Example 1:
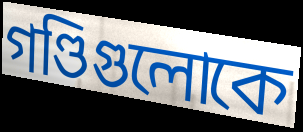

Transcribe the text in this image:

গণ্ডিগুলোকে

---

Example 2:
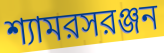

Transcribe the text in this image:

শ্যামরসরঞ্জন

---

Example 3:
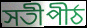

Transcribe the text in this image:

সতীপীঠ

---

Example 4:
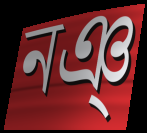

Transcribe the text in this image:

নঞ্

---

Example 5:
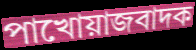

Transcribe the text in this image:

পাখোয়াজবাদক